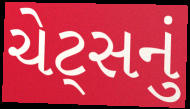
ચેટ્સનું